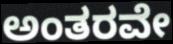
ಅಂತರವೇ